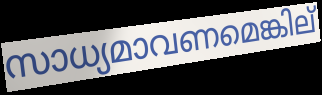
സാധ്യമാവണമെങ്കില്